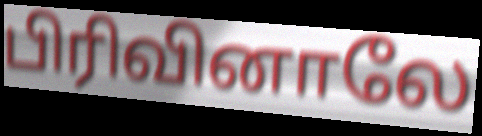
பிரிவினாலே